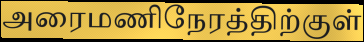
அரைமணிநேரத்திற்குள்